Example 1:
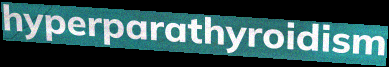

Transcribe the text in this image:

hyperparathyroidism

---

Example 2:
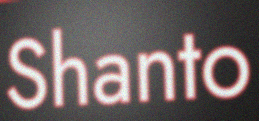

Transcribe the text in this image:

Shanto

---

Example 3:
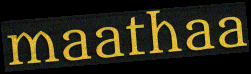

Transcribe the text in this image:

maathaa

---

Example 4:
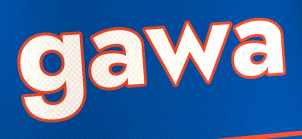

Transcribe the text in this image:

gawa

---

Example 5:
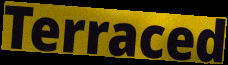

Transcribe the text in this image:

Terraced